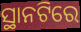
ସ୍ଥାନଟିରେ